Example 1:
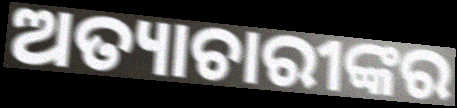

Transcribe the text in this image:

ଅତ୍ୟାଚାରୀଙ୍କର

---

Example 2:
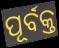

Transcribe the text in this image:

ପୂର୍ବକ୍ତ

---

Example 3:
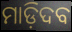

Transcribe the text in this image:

ମାଡ଼ିଦବ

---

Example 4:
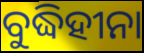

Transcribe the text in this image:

ବୁଦ୍ଧିହୀନା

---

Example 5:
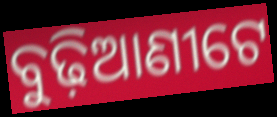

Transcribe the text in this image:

ବୁଢ଼ିଆଣୀଟେ